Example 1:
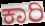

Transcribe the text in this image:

ಕಾರಿ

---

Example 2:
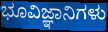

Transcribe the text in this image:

ಭೂವಿಜ್ಞಾನಿಗಳು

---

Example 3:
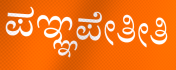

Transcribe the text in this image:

ಪಞ್ಞಪೇತೀತಿ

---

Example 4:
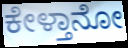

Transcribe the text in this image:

ಕೇಳ್ತಾನೋ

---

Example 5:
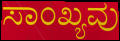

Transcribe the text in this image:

ಸಾಂಖ್ಯವು